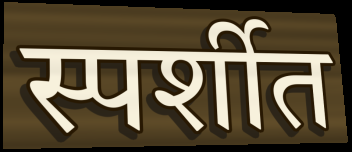
स्पर्शीत